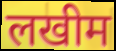
लखीम